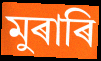
মুৰাৰি